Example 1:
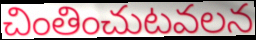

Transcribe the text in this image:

చింతించుటవలన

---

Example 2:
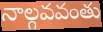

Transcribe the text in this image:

నాల్గవవంతు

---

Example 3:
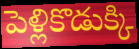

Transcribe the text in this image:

పెళ్లికొడుక్కి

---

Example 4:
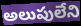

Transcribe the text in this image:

అలుపులేని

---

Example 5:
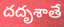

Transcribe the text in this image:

దదృశాతే